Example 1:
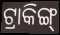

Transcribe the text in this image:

ଟ୍ରାକିଙ୍ଗ୍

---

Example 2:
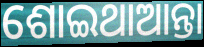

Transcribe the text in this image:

ଶୋଇଥାଆନ୍ତା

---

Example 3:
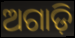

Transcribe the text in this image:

ଅଗାଡ଼ି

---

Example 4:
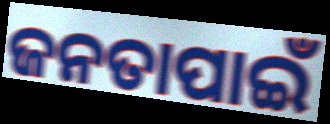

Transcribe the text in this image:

ଜନତାପାଇଁ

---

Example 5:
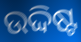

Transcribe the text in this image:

ଉଦ୍ଦିଷ୍ଟ